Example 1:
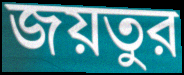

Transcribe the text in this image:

জয়তুর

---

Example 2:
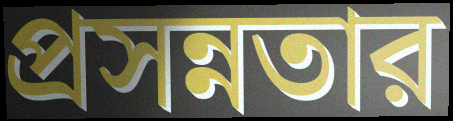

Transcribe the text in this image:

প্রসন্নতার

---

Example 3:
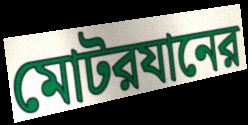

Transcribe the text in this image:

মোটরযানের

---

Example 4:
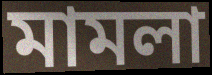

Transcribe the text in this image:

মামলা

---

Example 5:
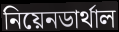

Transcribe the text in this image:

নিয়েনডার্থাল